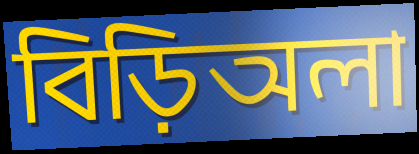
বিড়িঅলা